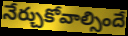
నేర్చుకోవాల్సిందే